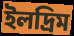
ইলদ্রিম